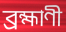
ব্রহ্মাণী